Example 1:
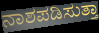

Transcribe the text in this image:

ನಾಶಪಡಿಸುತ್ತಾ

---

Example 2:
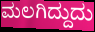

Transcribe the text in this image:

ಮಲಗಿದ್ದುದು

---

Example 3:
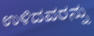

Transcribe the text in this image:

ಉಳಿದವರನ್ನು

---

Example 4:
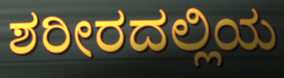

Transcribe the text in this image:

ಶರೀರದಲ್ಲಿಯ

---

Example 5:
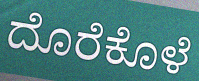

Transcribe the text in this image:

ದೊರೆಕೊಳೆ